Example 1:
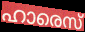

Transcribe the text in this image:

ഹാരെസ്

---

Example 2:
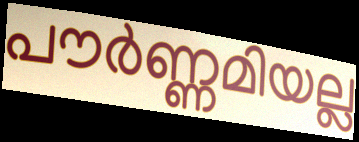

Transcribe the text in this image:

പൗർണ്ണമിയല്ല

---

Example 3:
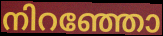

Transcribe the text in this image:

നിറഞ്ഞോ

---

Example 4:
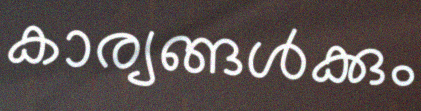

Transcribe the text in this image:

കാര്യങ്ങൾക്കും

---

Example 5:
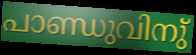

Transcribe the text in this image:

പാണ്ഡുവിനു്